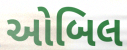
ઓબિલ